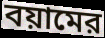
বয়ামের